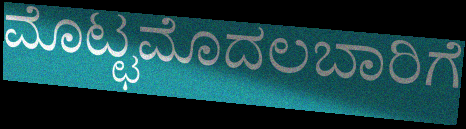
ಮೊಟ್ಟಮೊದಲಬಾರಿಗೆ